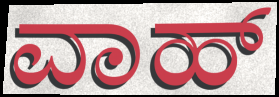
ವಾಹ್